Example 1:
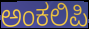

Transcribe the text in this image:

ಅಂಕಲಿಪಿ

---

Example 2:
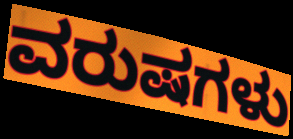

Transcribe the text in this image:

ವರುಷಗಳು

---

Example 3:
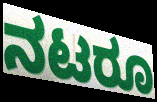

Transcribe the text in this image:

ನಟರೂ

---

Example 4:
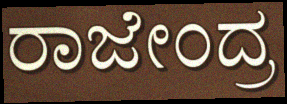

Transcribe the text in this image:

ರಾಜೇಂದ್ರ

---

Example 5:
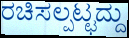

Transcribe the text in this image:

ರಚಿಸಲ್ಪಟ್ಟದ್ದು